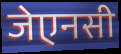
जेएनसी